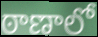
ఠాణాలో